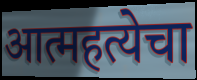
आत्महत्येचा